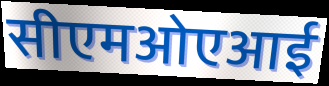
सीएमओएआई